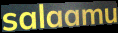
salaamu